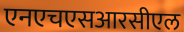
एनएचएसआरसीएल